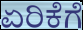
ಏರಿಕೆಗೆ